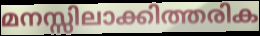
മനസ്സിലാക്കിത്തരിക